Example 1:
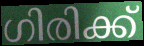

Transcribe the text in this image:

ഗിരിക്ക്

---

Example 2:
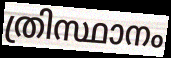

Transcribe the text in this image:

ത്രിസ്ഥാനം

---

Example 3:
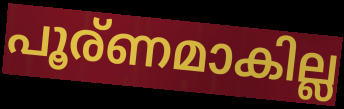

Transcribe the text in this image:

പൂര്ണമാകില്ല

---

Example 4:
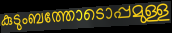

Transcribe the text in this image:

കുടുംബത്തോടൊപ്പമുള്ള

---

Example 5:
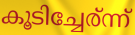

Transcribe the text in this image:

കൂടിച്ചേര്ന്ന്